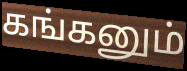
கங்கனும்